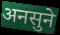
अनसुने